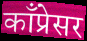
काँप्रेसर